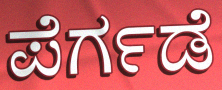
ಪೆರ್ಗಡೆ